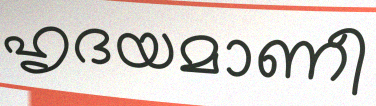
ഹൃദയമാണീ